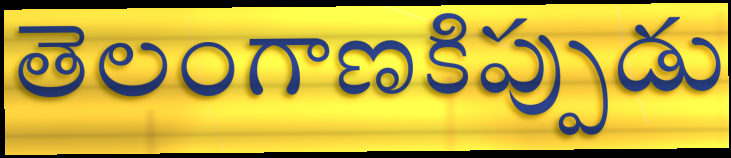
తెలంగాణకిప్పుడు